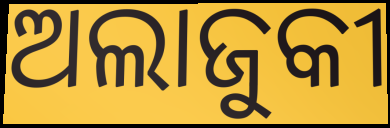
ଅଲାଜୁକୀ